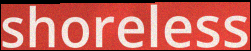
shoreless